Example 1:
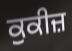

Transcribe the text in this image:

ਕੁਕੀਜ਼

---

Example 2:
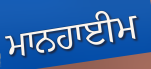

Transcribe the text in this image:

ਮਾਨਹਾਈਮ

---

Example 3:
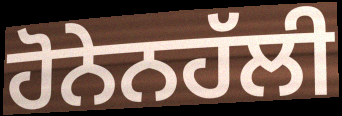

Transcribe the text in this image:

ਹੋਨੇਨਹੱਲੀ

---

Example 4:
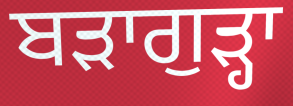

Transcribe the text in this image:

ਬੜਾਗੁੜ੍ਹਾ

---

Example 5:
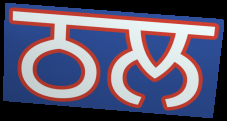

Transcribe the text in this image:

ਠਲ